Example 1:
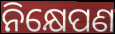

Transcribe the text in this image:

ନିକ୍ଷେପଣ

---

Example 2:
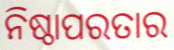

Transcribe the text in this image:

ନିଷ୍ଠାପରତାର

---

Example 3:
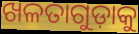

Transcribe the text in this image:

ଖଳତାଗୁଡ଼ାକୁ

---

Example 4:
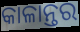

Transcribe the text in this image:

କାଳାନ୍ତର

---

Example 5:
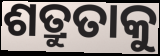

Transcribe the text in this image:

ଶତ୍ରୁତାକୁ